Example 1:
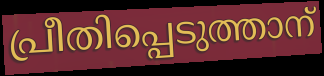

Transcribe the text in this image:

പ്രീതിപ്പെടുത്താന്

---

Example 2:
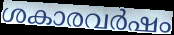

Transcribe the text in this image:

ശകാരവർഷം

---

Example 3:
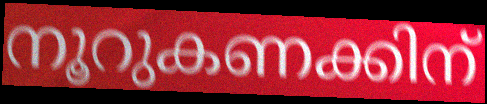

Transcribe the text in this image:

നൂറുകണക്കിന്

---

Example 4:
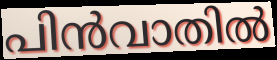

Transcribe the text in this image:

പിൻവാതിൽ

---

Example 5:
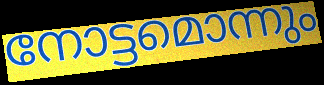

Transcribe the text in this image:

നോട്ടമൊന്നും